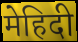
मेहिदी